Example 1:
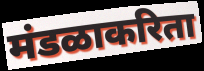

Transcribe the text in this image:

मंडळाकरिता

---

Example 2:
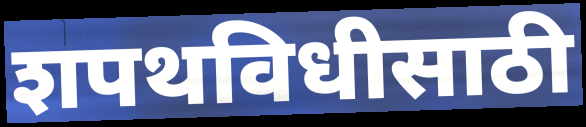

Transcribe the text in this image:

शपथविधीसाठी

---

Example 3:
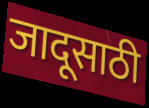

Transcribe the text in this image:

जादूसाठी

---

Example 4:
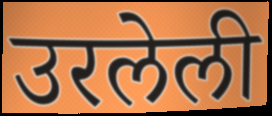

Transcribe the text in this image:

उरलेली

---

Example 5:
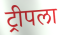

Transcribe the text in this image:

ट्रीपला